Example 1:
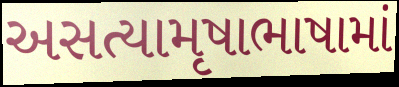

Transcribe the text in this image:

અસત્યામૃષાભાષામાં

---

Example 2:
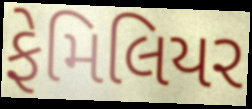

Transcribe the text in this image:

ફેમિલિયર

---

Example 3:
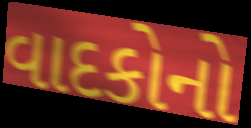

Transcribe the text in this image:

વાદકોનો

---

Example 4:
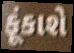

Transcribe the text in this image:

ફૂંકાશે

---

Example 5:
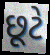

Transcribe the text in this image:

છૂટે